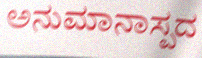
ಅನುಮಾನಾಸ್ಪದ